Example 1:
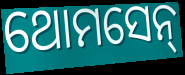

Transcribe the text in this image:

ଥୋମସେନ୍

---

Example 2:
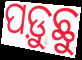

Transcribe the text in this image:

ପଡ଼ୁଛୁ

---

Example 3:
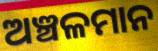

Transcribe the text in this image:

ଅଞ୍ଚଳମାନ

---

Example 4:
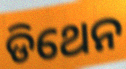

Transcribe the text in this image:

ଡିଥେନ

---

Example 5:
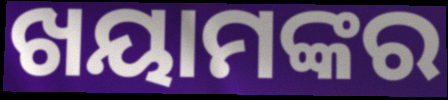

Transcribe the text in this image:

ଖୟାମଙ୍କର